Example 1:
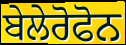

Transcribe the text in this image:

ਬੇਲੇਰੋਫੋਨ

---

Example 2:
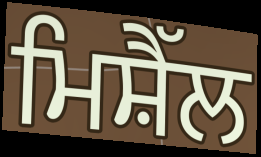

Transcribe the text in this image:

ਮਿਸ਼ੈੱਲ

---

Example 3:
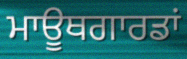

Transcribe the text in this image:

ਮਾਊਥਗਾਰਡਾਂ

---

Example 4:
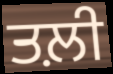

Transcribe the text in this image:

ਤਲ਼ੀ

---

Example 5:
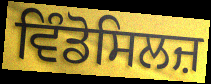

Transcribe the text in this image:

ਵਿੰਡੋਸਿਲਜ਼